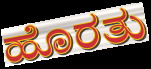
ಹೊರತು